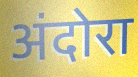
अंदोरा